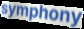
symphony